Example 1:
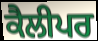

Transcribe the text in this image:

ਕੈਲੀਪਰ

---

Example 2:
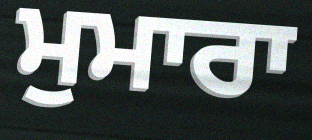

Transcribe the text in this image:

ਮੁਮਾਰਾ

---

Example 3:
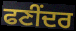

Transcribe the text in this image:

ਫਣੀਂਦਰ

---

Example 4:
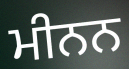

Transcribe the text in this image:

ਮੀਨਨ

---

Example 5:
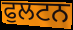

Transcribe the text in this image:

ਫੁਲਟਨ